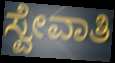
ಸ್ವೇವಾತಿ